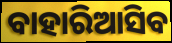
ବାହାରିଆସିବ